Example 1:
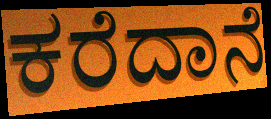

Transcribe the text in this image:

ಕರೆದಾನೆ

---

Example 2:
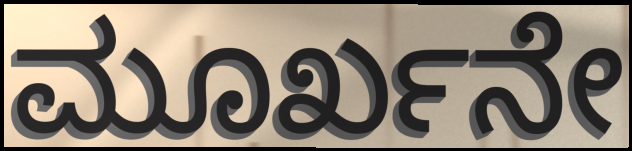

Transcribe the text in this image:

ಮೂರ್ಖನೇ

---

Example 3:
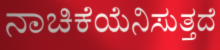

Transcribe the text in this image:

ನಾಚಿಕೆಯೆನಿಸುತ್ತದೆ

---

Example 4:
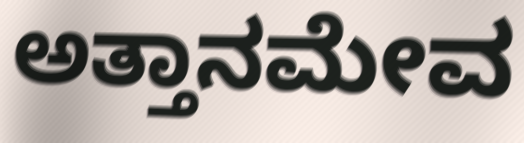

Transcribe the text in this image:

ಅತ್ತಾನಮೇವ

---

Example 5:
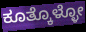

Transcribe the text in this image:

ಕೂತ್ಕೊಳ್ಳೋ